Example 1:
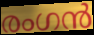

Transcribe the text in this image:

രംഗൻ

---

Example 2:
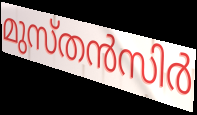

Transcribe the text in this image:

മുസ്തൻസിർ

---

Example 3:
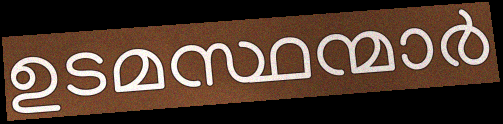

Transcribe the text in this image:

ഉടമസ്ഥന്മാർ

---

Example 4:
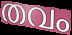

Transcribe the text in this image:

തവം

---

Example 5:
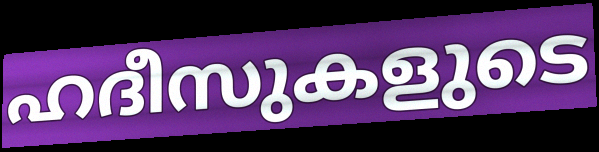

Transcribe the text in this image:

ഹദീസുകളുടെ